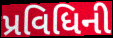
પ્રવિધિની